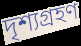
দৃশ্যগ্ৰহণ